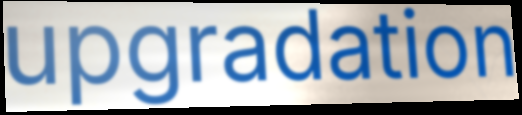
upgradation